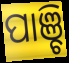
ପାଞ୍ଚି